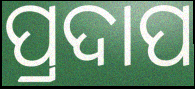
ପ୍ରଦାପ